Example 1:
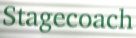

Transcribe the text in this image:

Stagecoach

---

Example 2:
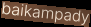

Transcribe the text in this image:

baikampady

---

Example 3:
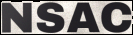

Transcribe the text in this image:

NSAC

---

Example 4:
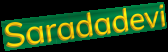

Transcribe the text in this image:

Saradadevi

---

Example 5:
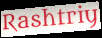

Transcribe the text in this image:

Rashtriy